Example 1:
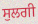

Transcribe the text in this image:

ਸੁਲਗੀ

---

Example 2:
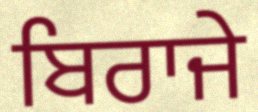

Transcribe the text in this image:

ਬਿਰਾਜੇ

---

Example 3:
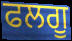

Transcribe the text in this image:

ਫਲਗੂ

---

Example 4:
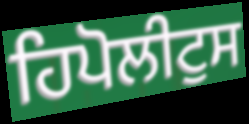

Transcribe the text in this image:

ਹਿਪੋਲੀਟੁਸ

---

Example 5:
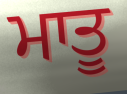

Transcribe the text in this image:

ਮਾਤੂ